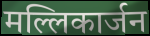
मल्लिकार्जन